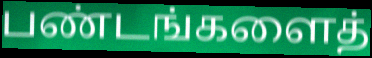
பண்டங்களைத்